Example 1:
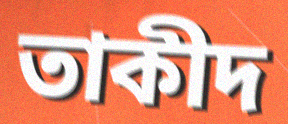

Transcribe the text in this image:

তাকীদ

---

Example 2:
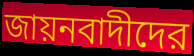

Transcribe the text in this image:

জায়নবাদীদের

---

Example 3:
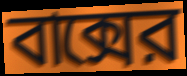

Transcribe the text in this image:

বাক্সের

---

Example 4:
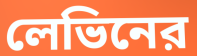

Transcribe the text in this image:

লেভিনের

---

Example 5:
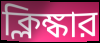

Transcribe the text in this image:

ক্লিঙ্কার